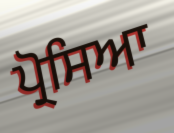
ਪ੍ਰੋਸਿਆ